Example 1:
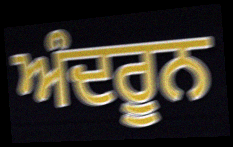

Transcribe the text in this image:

ਅੰਦਰੂਨ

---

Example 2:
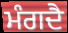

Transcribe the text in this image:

ਮੰਗਦੈ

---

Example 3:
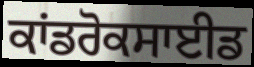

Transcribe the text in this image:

ਕਾਂਡਰੋਕਸਾਈਡ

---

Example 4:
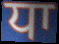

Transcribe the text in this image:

ਧਾ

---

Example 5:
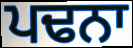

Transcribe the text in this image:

ਪਢਨਾ